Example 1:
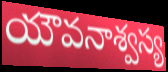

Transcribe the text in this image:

యౌవనాశ్వస్య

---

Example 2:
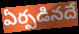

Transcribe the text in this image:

ఏర్పడినదే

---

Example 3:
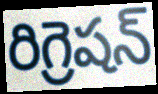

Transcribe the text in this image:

రిగ్రెషన్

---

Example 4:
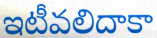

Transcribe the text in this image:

ఇటీవలిదాకా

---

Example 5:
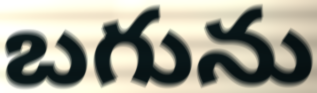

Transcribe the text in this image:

బగును